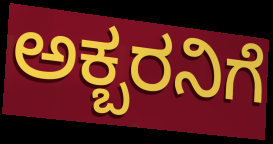
ಅಕ್ಬರನಿಗೆ